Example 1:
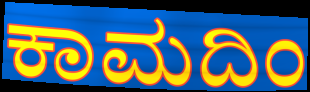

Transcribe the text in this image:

ಕಾಮದಿಂ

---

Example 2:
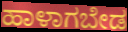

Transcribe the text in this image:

ಹಾಳಾಗಬೇಡ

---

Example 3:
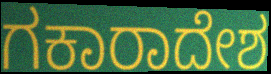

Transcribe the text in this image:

ಗಕಾರಾದೇಶ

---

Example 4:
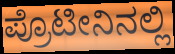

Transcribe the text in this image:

ಪ್ರೊಟೀನಿನಲ್ಲಿ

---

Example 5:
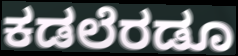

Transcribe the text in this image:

ಕಡಲೆರಡೂ